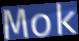
Mok